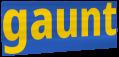
gaunt